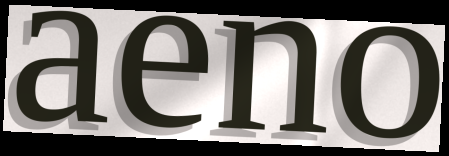
aeno